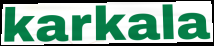
karkala